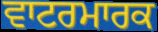
ਵਾਟਰਮਾਰਕ